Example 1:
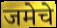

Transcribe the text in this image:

जमेचे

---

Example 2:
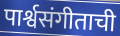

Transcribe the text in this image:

पार्श्वसंगीताची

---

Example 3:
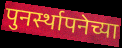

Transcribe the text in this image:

पुनर्स्थापनेच्या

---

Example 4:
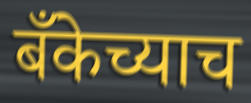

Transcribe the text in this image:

बँकेच्याच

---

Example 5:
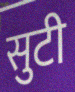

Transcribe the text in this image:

सुटी